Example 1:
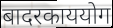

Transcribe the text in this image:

बादरकाययोग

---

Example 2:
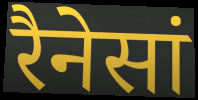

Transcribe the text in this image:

रैनेसां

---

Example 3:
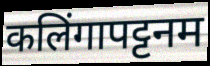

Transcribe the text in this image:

कलिंगापट्टनम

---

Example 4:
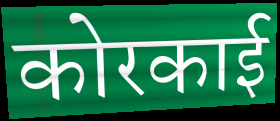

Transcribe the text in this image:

कोरकाई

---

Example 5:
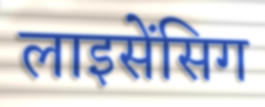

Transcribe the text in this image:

लाइसेंसिग